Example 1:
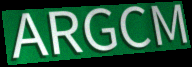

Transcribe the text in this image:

ARGCM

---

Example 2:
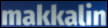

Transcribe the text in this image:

makkalin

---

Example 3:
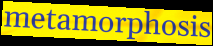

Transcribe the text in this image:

metamorphosis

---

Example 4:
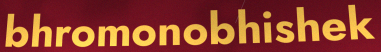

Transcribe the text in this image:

bhromonobhishek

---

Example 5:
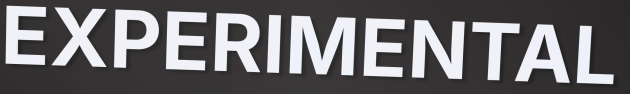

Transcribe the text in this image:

EXPERIMENTAL